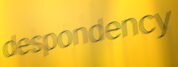
despondency